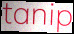
tanip